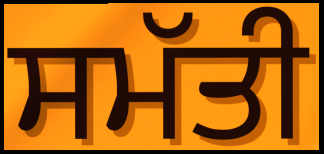
ਸਮੱਤੀ